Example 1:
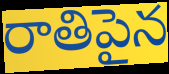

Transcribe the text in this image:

రాతిపైన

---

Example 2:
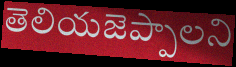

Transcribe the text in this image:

తెలియజెప్పాలని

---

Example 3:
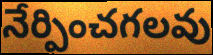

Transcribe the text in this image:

నేర్పించగలవు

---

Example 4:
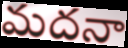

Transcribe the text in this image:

మదనా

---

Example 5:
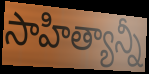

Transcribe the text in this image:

సాహిత్యాన్నీ